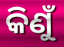
କିଣୁଁ